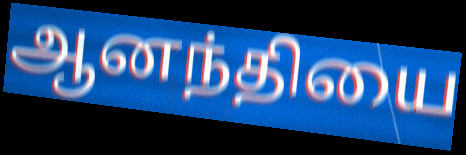
ஆனந்தியை